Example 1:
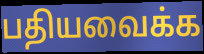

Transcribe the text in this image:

பதியவைக்க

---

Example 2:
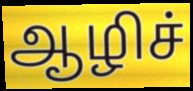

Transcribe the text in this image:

ஆழிச்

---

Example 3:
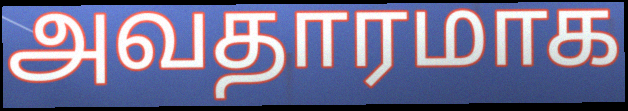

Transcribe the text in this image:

அவதாரமாக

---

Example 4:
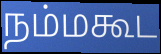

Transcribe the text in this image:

நம்மகூட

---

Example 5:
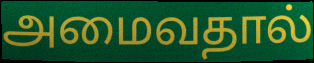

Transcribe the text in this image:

அமைவதால்